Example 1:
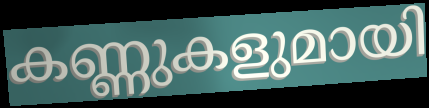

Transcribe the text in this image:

കണ്ണുകളുമായി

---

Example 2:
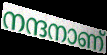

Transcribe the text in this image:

നന്ദനാണ്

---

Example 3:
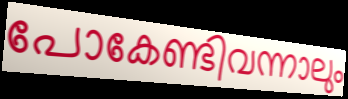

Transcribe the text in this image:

പോകേണ്ടിവന്നാലും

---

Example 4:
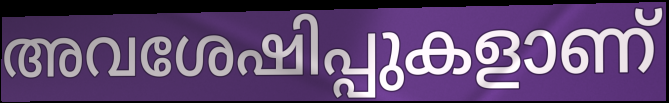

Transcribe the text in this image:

അവശേഷിപ്പുകളാണ്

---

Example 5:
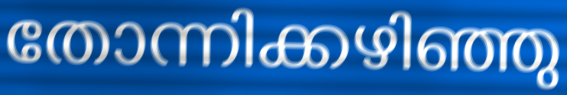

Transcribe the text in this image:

തോന്നിക്കഴിഞ്ഞു